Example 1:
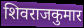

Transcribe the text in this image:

शिवराजकुमार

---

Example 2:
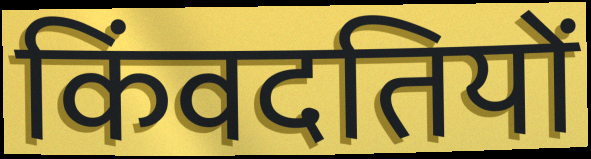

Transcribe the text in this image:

किंवदतियों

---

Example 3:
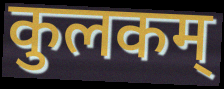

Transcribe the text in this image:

कुलकम्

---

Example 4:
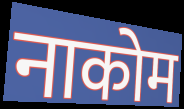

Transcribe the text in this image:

नाकोम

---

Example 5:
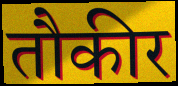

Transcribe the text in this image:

तौकीर